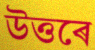
উত্তৰে